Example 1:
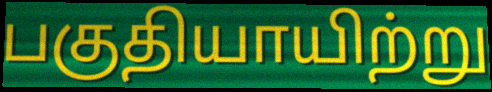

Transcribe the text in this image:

பகுதியாயிற்று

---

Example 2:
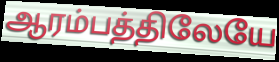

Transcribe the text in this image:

ஆரம்பத்திலேயே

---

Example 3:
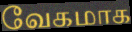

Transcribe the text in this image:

வேகமாக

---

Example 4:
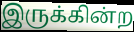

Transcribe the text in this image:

இருக்கின்ற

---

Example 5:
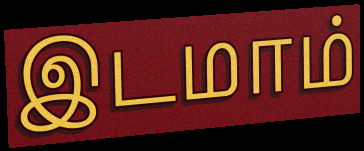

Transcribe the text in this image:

இடமாம்